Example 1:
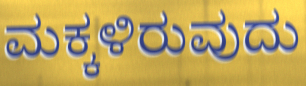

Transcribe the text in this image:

ಮಕ್ಕಳಿರುವುದು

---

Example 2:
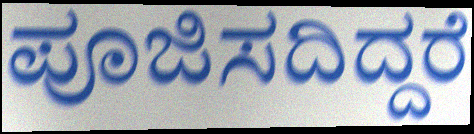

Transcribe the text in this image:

ಪೂಜಿಸದಿದ್ದರೆ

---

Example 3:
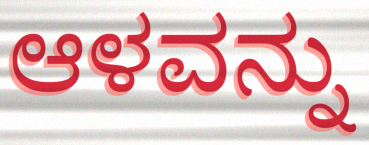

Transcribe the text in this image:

ಆಳವನ್ನು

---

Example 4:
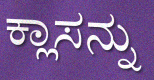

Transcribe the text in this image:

ಕ್ಲಾಸನ್ನು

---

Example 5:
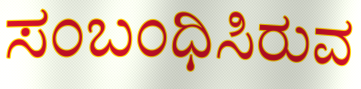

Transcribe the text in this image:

ಸಂಬಂಧಿಸಿರುವ